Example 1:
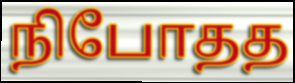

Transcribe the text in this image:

நிபோதத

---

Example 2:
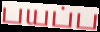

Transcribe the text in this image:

பயப்ப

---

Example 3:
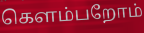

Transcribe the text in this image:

கெளம்பறோம்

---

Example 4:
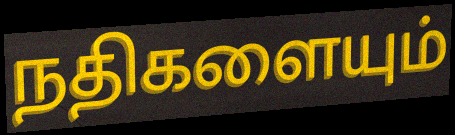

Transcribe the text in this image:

நதிகளையும்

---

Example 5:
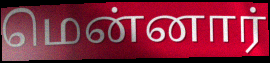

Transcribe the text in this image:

மென்னார்